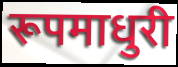
रूपमाधुरी